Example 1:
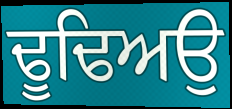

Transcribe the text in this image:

ਢੂਢਿਅਉ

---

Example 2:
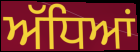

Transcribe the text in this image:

ਅੱਧਿਆਂ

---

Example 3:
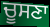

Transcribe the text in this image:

ਚੂਸਣਾ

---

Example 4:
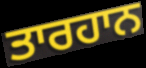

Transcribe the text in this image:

ਤਾਰਹਾਨ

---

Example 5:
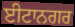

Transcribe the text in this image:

ਈਟਾਨਗਰ